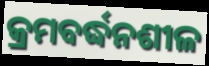
କ୍ରମବର୍ଦ୍ଧନଶୀଳ